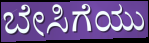
ಬೇಸಿಗೆಯು